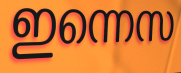
ഇന്നെസ